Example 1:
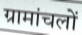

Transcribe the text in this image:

ग्रामांचलों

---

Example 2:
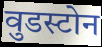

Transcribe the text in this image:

वुडस्टोन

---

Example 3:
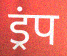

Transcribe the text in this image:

ड्रंप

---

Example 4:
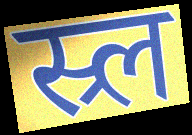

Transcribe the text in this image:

स्र्ल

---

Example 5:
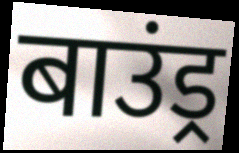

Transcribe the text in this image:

बाउंड्र